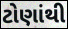
ટોણાંથી